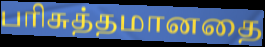
பரிசுத்தமானதை